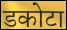
डकोटा